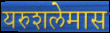
यरुशलेमास